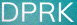
DPRK